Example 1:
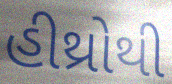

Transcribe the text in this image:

હીથ્રોથી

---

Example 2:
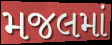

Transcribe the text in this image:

મજલમાં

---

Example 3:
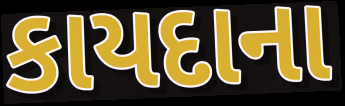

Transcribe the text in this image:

કાયદાના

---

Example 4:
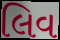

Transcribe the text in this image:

લિવ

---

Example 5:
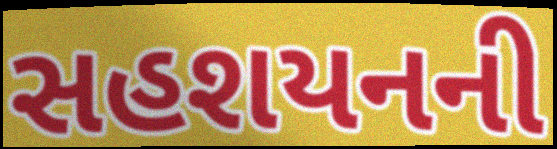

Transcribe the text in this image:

સહશયનની